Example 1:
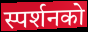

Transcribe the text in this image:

स्पर्शनको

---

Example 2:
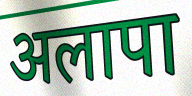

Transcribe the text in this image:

अलापा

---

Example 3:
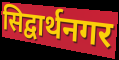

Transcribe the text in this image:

सिद्वार्थनगर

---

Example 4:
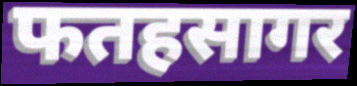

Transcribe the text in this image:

फतहसागर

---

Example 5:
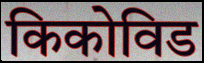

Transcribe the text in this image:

किकोविड